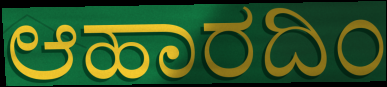
ಆಹಾರದಿಂ